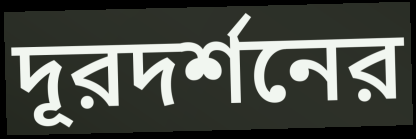
দূরদর্শনের